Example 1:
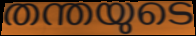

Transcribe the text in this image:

തന്തയുടെ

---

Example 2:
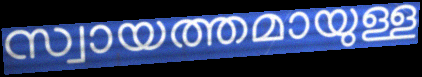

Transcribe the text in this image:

സ്വായത്തമായുള്ള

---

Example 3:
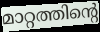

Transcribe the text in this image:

മാറ്റത്തിന്റെ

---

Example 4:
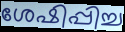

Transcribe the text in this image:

ശേഷിപ്പിച്ച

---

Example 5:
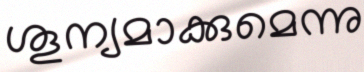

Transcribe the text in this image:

ശൂന്യമാക്കുമെന്നു